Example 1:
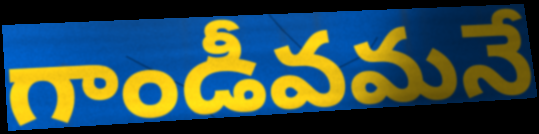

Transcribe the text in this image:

గాండీవమనే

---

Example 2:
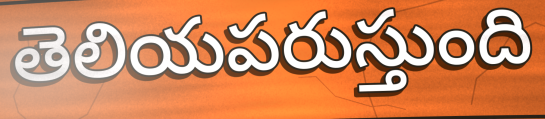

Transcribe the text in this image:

తెలియపరుస్తుంది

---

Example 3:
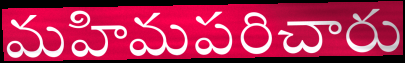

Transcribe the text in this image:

మహిమపరిచారు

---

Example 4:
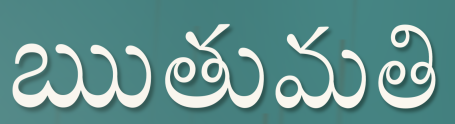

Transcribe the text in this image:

ఋతుమతి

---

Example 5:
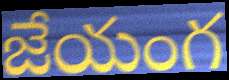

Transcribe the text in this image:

జేయంగ